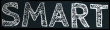
SMART